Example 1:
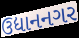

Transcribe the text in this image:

ઉદ્યાનનગર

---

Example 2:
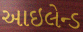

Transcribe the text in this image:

આઇલેન્ડ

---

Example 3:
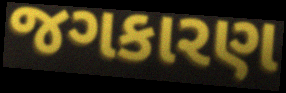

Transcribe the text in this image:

જગકારણ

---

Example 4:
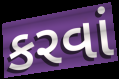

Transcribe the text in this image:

કરવાં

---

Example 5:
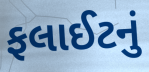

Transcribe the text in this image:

ફલાઈટનું